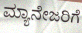
ಮ್ಯಾನೇಜರಿಗೆ